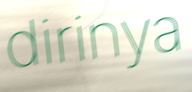
dirinya